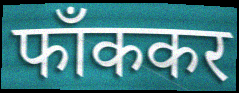
फाँककर